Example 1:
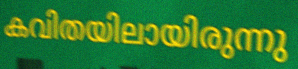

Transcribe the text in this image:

കവിതയിലായിരുന്നു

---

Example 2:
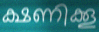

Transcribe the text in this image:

ക്ഷണിക്കൂ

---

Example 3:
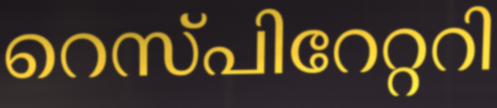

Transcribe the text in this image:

റെസ്പിറേറ്ററി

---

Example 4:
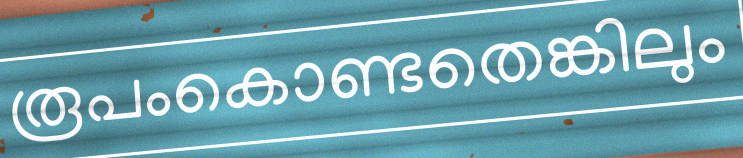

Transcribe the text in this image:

രൂപംകൊണ്ടതെങ്കിലും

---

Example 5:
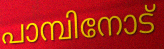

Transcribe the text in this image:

പാമ്പിനോട്